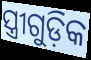
ସ୍ତ୍ରୀଗୁଡ଼ିକ